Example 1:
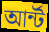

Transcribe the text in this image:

আর্ন্ট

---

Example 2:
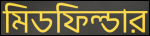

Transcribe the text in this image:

মিডফিল্ডার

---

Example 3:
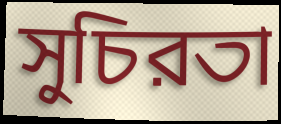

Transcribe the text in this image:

সুচিরতা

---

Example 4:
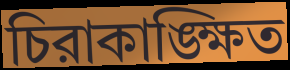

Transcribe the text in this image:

চিরাকাঙ্ক্ষিত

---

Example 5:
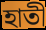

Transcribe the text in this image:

হাতী